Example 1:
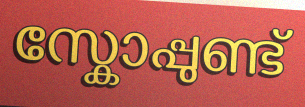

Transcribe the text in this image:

സ്കോപ്പുണ്ട്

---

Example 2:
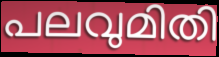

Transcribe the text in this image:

പലവുമിതി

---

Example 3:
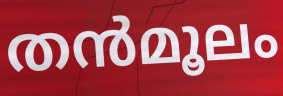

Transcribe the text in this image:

തൻമൂലം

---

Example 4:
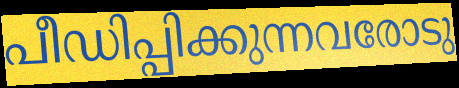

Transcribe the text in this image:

പീഡിപ്പിക്കുന്നവരോടു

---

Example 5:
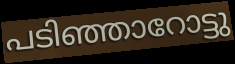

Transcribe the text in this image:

പടിഞ്ഞാറോട്ടു